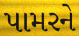
પામરને